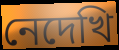
নেদেখি